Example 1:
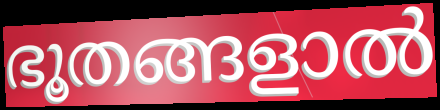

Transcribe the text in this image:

ഭൂതങ്ങളാൽ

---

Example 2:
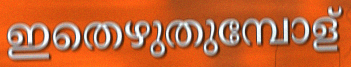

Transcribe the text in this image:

ഇതെഴുതുമ്പോള്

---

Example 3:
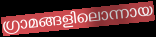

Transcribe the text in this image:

ഗ്രാമങ്ങളിലൊന്നായ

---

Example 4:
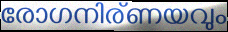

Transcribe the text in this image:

രോഗനിര്ണയവും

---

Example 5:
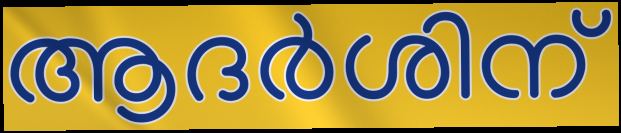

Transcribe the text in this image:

ആദർശിന്